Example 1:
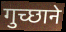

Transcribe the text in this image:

गुच्छाने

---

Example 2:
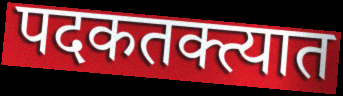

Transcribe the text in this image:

पदकतक्त्यात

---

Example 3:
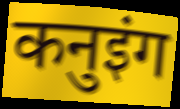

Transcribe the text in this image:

कनुइंग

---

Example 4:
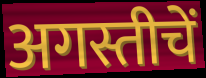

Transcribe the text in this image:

अगस्तीचें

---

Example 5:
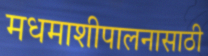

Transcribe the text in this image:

मधमाशीपालनासाठी